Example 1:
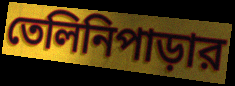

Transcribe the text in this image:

তেলিনিপাড়ার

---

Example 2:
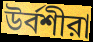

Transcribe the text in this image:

উর্বশীরা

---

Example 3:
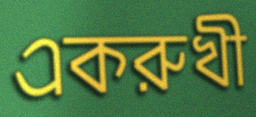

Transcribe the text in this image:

একরুখী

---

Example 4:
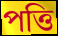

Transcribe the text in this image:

পত্তি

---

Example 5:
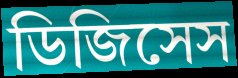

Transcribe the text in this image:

ডিজিসেস